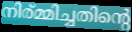
നിര്മ്മിച്ചതിന്റെ